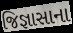
જિજ્ઞાસાના